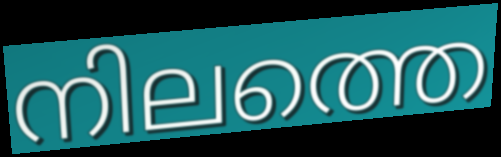
നിലത്തെ